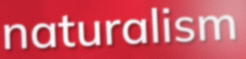
naturalism